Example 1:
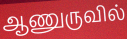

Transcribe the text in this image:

ஆணுருவில்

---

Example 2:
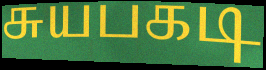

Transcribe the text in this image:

சுயபகடி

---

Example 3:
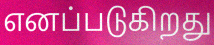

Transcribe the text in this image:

எனப்படுகிறது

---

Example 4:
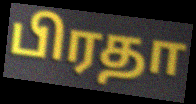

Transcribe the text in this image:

பிரதா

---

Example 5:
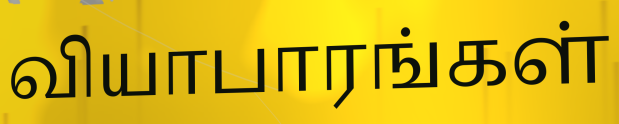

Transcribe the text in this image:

வியாபாரங்கள்